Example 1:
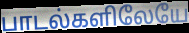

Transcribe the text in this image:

பாடல்களிலேயே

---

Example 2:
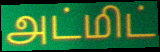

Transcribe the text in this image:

அட்மிட்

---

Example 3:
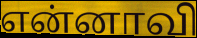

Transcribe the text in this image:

என்னாவி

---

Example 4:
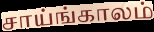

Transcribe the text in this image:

சாய்ங்காலம்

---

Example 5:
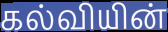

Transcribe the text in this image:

கல்வியின்